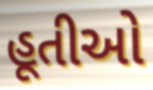
હૂતીઓ